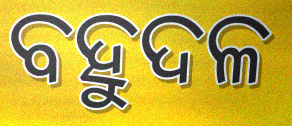
ବହୁଦଳ